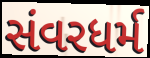
સંવરધર્મ